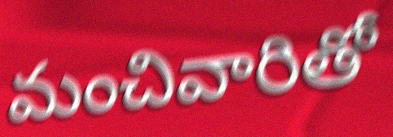
మంచివారితో